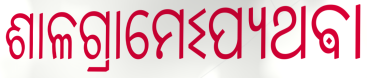
ଶାଳଗ୍ରାମେଽପ୍ଯଥଵା